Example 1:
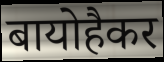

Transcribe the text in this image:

बायोहैकर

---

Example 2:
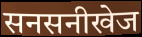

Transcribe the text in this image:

सनसनीखेज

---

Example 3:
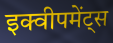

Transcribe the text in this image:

इक्वीपमेंट्स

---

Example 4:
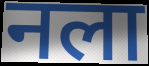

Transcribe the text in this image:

नला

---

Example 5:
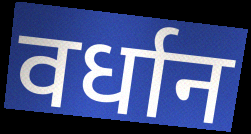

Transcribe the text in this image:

वर्धान